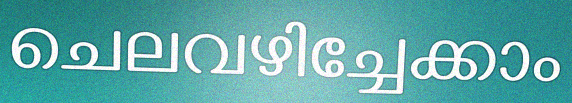
ചെലവഴിച്ചേക്കാം